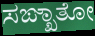
ಸಙ್ಖಾತೋ